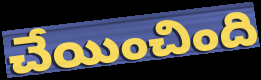
చేయించింది